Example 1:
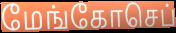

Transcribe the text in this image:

மேங்கோசெப்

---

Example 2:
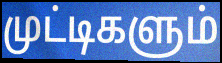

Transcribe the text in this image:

முட்டிகளும்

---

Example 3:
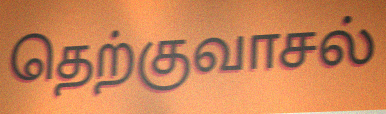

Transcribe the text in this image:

தெற்குவாசல்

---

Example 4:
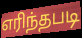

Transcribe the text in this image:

எரிந்தபடி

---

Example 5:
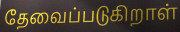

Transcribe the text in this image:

தேவைப்படுகிறாள்